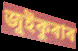
জুইকুৰাৰ